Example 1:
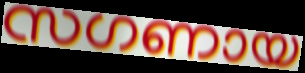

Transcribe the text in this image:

സഗണായ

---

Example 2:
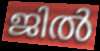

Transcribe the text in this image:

ജിൽ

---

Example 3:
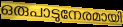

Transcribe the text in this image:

ഒരുപാടുനേരമായി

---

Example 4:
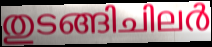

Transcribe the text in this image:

തുടങ്ങിചിലർ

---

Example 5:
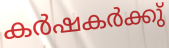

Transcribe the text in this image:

കർഷകർക്കു്